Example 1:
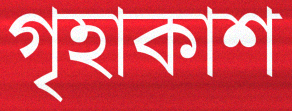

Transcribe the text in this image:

গৃহাকাশ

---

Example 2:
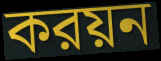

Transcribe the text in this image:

করয়ন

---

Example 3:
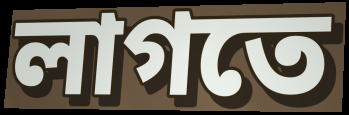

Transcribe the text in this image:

লাগতে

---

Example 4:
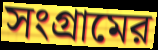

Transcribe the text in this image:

সংগ্রামের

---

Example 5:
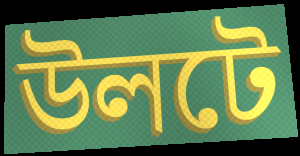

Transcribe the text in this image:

উলটে